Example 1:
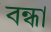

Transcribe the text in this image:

বন্ধা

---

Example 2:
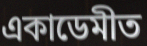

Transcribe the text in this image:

একাডেমীত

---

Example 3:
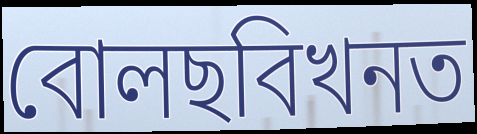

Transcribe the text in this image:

বোলছবিখনত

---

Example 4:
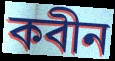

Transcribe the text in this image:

কবীন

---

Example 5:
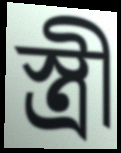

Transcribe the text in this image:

স্ত্ৰী